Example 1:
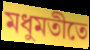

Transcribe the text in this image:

মধুমতীতে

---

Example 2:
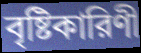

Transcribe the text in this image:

বৃষ্টিকারিণী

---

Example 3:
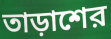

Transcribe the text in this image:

তাড়াশের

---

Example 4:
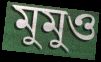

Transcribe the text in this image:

মুমুও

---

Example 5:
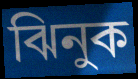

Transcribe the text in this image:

ঝিনুক